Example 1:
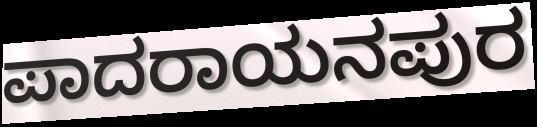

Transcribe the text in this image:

ಪಾದರಾಯನಪುರ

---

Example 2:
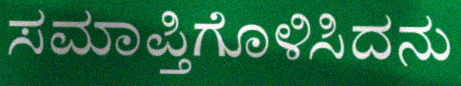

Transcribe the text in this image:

ಸಮಾಪ್ತಿಗೊಳಿಸಿದನು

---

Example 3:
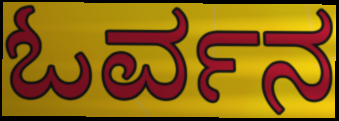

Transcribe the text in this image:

ಓರ್ವನ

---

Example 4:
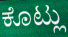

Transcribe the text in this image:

ಕೊಟ್ಲು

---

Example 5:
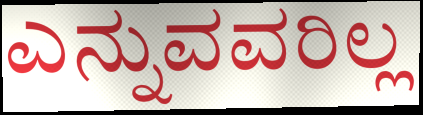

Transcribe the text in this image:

ಎನ್ನುವವರಿಲ್ಲ